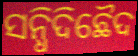
ସନ୍ଧିଦିଛୈଦ